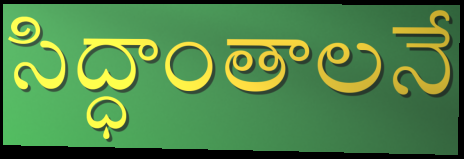
సిద్ధాంతాలనే